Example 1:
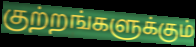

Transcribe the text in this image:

குற்றங்களுக்கும்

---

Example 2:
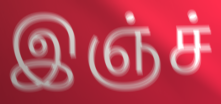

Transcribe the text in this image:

இஞ்ச்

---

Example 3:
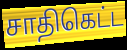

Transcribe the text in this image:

சாதிகெட்ட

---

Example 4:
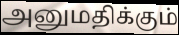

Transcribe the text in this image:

அனுமதிக்கும்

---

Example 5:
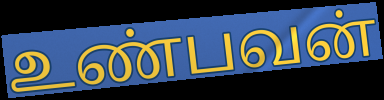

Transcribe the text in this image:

உண்பவன்